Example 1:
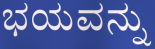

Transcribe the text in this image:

ಭಯವನ್ನು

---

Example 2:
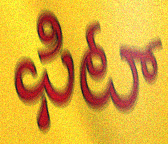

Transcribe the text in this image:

ಫಿಟ್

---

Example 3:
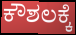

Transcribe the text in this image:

ಕೌಶಲಕ್ಕೆ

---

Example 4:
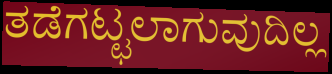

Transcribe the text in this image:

ತಡೆಗಟ್ಟಲಾಗುವುದಿಲ್ಲ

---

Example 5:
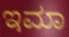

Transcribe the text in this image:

ಇಮಾ